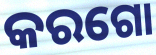
କରଗୋ